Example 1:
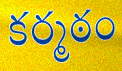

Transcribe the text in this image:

కర్మఠం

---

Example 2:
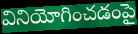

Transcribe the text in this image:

వినియోగించడంపై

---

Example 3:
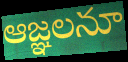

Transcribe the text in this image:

ఆజ్ఞలనూ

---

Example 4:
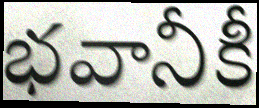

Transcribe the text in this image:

భవానీకీ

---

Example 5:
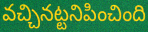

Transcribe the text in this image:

వచ్చినట్టనిపించింది